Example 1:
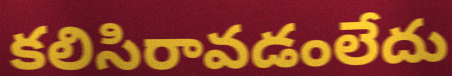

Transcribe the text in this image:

కలిసిరావడంలేదు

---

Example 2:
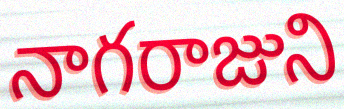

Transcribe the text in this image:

నాగరాజుని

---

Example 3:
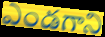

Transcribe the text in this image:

ఎండగాని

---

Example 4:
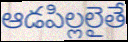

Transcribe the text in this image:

ఆడపిల్లలైతే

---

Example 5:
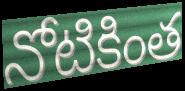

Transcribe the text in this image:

నోటికింత